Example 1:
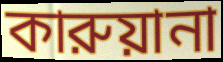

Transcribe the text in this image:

কারুয়ানা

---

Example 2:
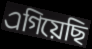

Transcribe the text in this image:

এগিয়েছি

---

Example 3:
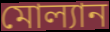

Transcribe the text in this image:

মোল্যান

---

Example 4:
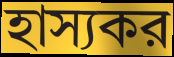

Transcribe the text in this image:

হাস্যকর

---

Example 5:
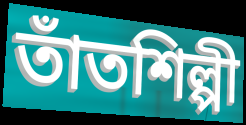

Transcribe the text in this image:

তাঁতশিল্পী